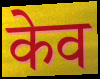
केव